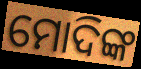
ମୋଦିଙ୍କ